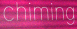
chiming